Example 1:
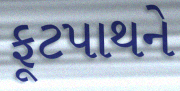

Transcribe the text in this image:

ફૂટપાથને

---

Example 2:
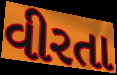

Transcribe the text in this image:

વીરતા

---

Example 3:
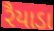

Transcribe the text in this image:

રૈયાડા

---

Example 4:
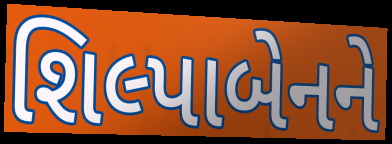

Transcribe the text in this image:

શિલ્પાબેનને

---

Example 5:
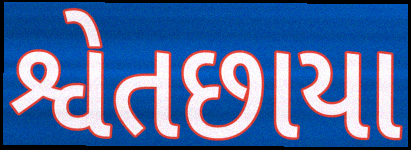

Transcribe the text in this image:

શ્વેતછાયા